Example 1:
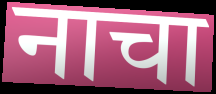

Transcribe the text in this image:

नाचा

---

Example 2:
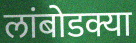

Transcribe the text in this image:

लांबोडक्या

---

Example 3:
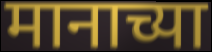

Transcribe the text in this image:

मानाच्या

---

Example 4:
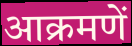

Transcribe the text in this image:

आक्रमणें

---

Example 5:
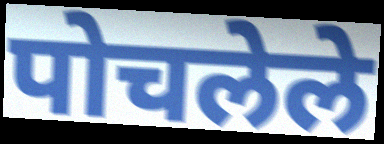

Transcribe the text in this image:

पोचलेले